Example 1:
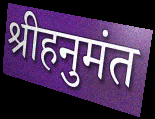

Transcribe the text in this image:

श्रीहनुमंत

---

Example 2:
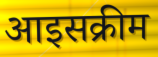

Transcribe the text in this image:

आइसक्रीम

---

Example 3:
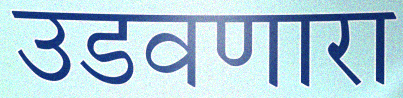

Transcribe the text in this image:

उडवणारा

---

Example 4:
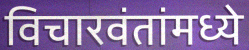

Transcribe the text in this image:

विचारवंतांमध्ये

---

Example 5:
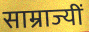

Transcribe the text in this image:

साम्राज्यीं